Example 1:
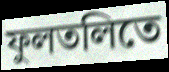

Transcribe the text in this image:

ফুলতলিতে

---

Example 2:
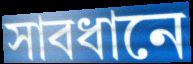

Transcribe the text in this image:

সাবধানে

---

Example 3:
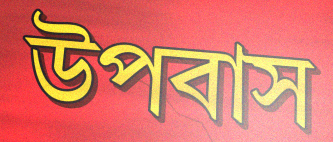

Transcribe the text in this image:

উপবাস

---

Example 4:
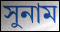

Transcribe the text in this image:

সুনাম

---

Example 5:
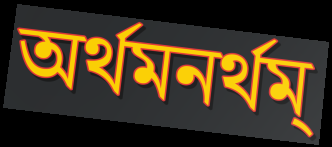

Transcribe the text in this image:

অর্থমনর্থম্